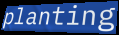
planting